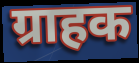
ग्राहक